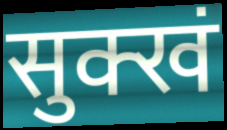
सुक्खं